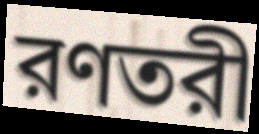
রণতরী